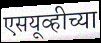
एसयूव्हीच्या